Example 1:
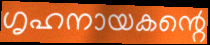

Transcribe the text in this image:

ഗൃഹനായകന്റെ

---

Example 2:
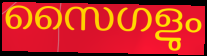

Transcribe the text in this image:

സൈഗളും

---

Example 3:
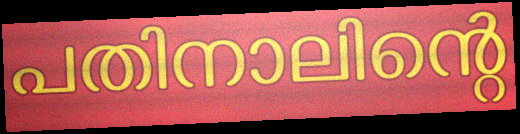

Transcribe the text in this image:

പതിനാലിന്റെ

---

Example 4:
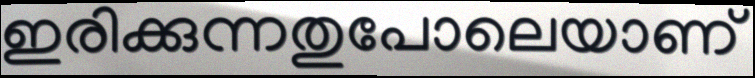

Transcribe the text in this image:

ഇരിക്കുന്നതുപോലെയാണ്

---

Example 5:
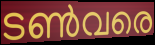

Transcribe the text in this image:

ടൺവരെ